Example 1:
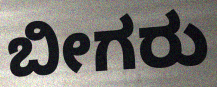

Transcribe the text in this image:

ಬೀಗರು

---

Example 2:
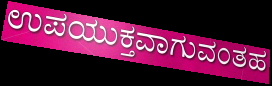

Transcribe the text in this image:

ಉಪಯುಕ್ತವಾಗುವಂತಹ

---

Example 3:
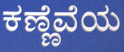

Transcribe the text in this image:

ಕಣ್ಣೆವೆಯ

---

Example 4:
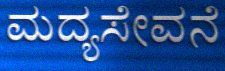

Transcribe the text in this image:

ಮದ್ಯಸೇವನೆ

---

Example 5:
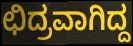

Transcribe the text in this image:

ಛಿದ್ರವಾಗಿದ್ದ